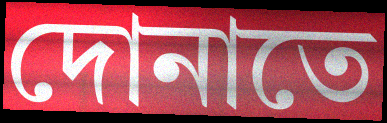
দোনাতে